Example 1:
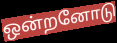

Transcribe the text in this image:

ஒன்றனோடு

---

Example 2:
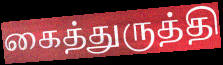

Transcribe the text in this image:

கைத்துருத்தி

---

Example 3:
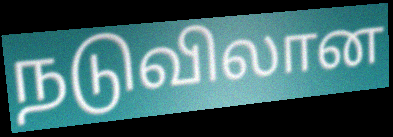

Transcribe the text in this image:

நடுவிலான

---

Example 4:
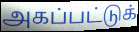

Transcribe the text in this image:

அகப்பட்டுக்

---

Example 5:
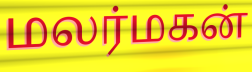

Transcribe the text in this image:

மலர்மகன்